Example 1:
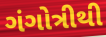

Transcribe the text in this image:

ગંગોત્રીથી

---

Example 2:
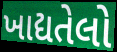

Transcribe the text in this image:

ખાદ્યતેલો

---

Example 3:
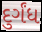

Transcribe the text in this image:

દુર્ગંધ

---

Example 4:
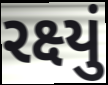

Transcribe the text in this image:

રક્ષ્યું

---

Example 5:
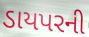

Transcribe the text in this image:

ડાયપરની